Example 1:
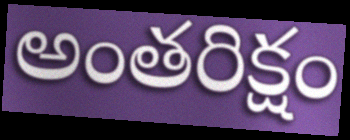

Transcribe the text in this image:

అంతరిక్షం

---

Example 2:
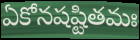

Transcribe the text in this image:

ఏకోనషష్టితమః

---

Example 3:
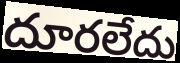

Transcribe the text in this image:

దూరలేదు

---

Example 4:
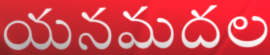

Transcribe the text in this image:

యనమదల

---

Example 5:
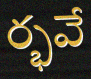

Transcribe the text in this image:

ర్భవే